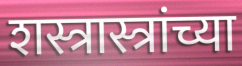
शस्त्रास्त्रांच्या